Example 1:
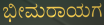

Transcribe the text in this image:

ಭೀಮರಾಯಗ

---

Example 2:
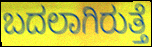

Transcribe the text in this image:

ಬದಲಾಗಿರುತ್ತೆ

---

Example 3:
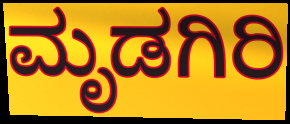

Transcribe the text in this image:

ಮೃಡಗಿರಿ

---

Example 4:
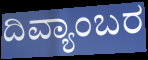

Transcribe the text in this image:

ದಿವ್ಯಾಂಬರ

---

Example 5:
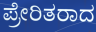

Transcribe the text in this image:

ಪ್ರೇರಿತರಾದ